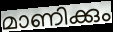
മാണിക്കും